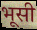
भूसी